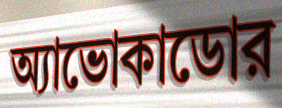
অ্যাভোকাডোর